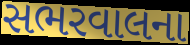
સભરવાલના